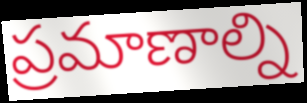
ప్రమాణాల్ని